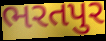
ભરતપુર